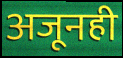
अजूनही